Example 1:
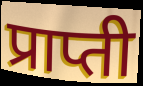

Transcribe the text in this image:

प्राप्ती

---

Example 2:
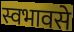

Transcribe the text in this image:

स्वभावसे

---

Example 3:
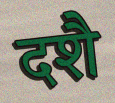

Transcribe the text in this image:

दशै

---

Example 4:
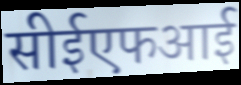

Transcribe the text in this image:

सीईएफआई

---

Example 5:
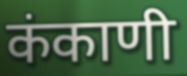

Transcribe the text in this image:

कंकाणी